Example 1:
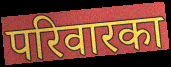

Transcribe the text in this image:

परिवारका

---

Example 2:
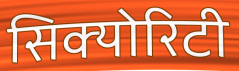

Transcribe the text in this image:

सिक्‍योरिटी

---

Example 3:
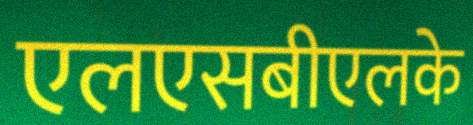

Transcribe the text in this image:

एलएसबीएलके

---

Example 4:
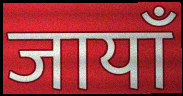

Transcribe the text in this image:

जायाँ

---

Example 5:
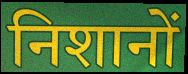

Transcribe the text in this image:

निशानों